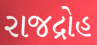
રાજદ્રોહ